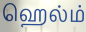
ஹெல்ம்